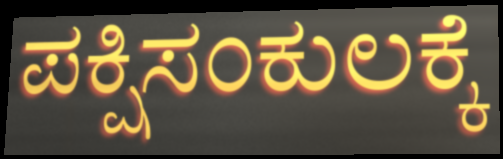
ಪಕ್ಷಿಸಂಕುಲಕ್ಕೆ